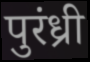
पुरंध्री